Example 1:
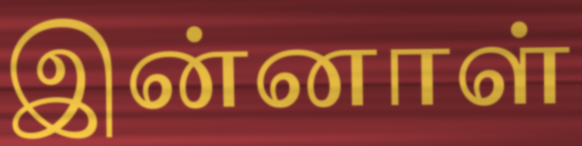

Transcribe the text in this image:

இன்னாள்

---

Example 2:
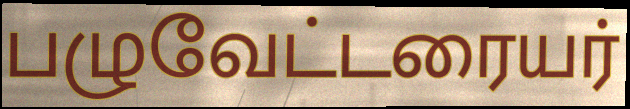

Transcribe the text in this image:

பழுவேட்டரையர்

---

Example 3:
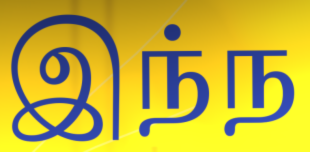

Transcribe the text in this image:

இந்ந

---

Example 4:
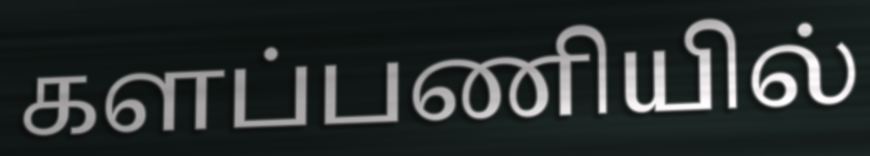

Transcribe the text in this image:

களப்பணியில்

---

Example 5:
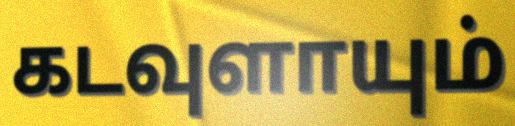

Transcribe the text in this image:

கடவுளாயும்